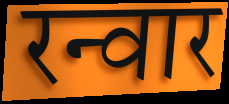
रन्वार